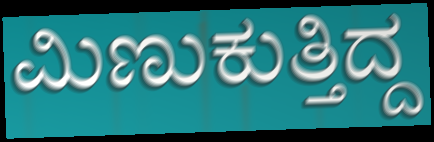
ಮಿಣುಕುತ್ತಿದ್ದ